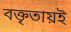
বক্তৃতায়ই